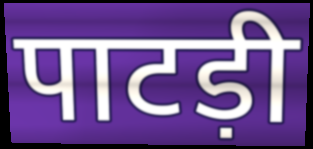
पाटड़ी